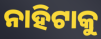
ନାହିଟାକୁ